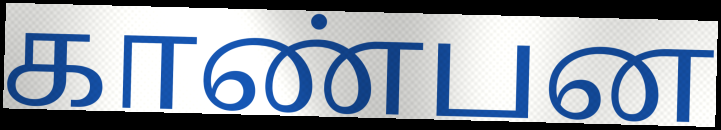
காண்பன